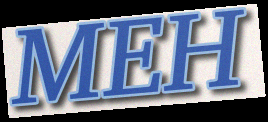
MEH